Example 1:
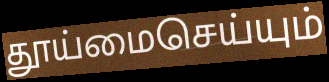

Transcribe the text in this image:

தூய்மைசெய்யும்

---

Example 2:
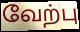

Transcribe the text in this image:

வேற்பு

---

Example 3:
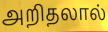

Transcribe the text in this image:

அறிதலால்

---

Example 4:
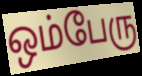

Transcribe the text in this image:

ஒம்பேரு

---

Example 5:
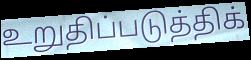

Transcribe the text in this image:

உறுதிப்படுத்திக்